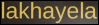
lakhayela